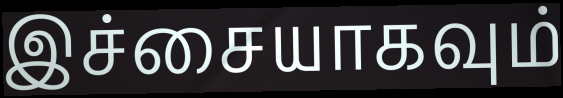
இச்சையாகவும்